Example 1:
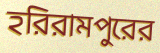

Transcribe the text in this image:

হরিরামপুরের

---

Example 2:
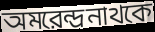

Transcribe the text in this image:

অমরেন্দ্রনাথকে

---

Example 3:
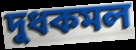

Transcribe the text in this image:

দুধকমল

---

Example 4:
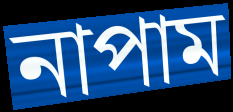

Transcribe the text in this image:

নাপাম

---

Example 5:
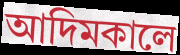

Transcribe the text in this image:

আদিমকালে